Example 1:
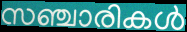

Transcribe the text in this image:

സഞ്ചാരികൾ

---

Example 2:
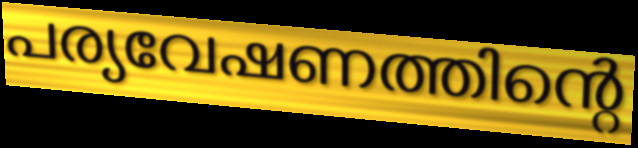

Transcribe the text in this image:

പര്യവേഷണത്തിന്റെ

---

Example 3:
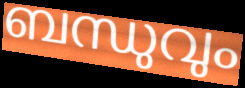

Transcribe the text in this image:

ബന്ധുവും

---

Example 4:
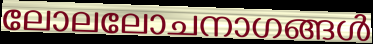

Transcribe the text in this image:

ലോലലോചനാഗങ്ങൾ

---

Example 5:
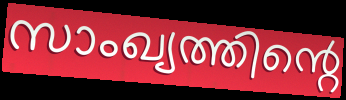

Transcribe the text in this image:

സാംഖ്യത്തിന്റെ